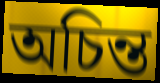
অচিন্ত